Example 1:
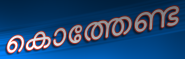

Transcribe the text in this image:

കൊത്തേണ്ട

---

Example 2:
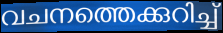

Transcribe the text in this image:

വചനത്തെക്കുറിച്ച്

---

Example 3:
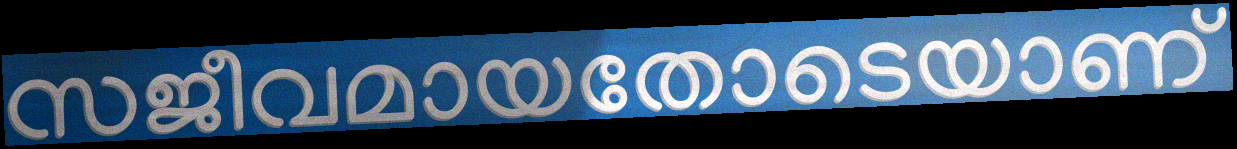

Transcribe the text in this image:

സജീവമായതോടെയാണ്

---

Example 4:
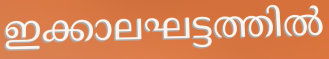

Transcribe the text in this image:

ഇക്കാലഘട്ടത്തിൽ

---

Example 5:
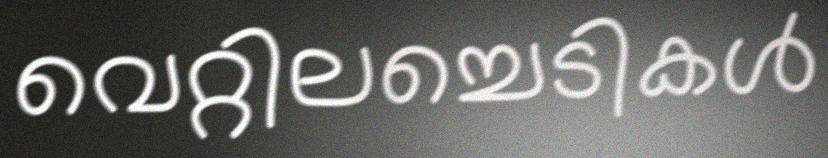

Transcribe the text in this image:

വെറ്റിലച്ചെടികൾ